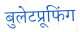
बुलेटप्रूफिंग